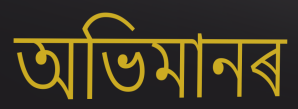
অভিমানৰ